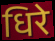
धिरे